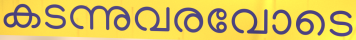
കടന്നുവരവോടെ